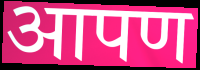
आपण